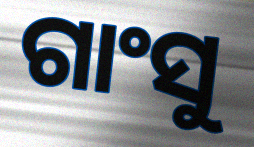
ଗାଂସୁ